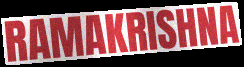
RAMAKRISHNA